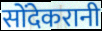
सोंदेकरानी